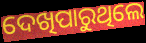
ଦେଖିପାରୁଥିଲେ